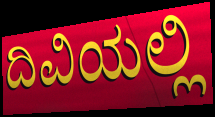
ದಿವಿಯಲ್ಲಿ